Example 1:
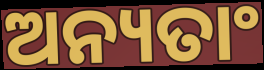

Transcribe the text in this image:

ଅନ୍ୟତାଂ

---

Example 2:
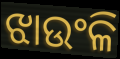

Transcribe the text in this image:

ଝାଉଂଳି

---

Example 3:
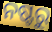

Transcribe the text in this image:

ନଷ୍ଟରୁ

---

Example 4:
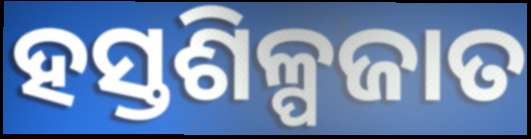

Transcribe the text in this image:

ହସ୍ତଶିଳ୍ପଜାତ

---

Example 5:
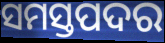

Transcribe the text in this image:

ସମସ୍ତପଦର